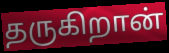
தருகிறான்